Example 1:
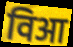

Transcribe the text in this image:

विआ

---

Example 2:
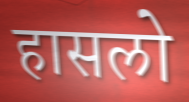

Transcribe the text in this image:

हासलो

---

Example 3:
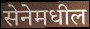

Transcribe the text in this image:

सेनेमधील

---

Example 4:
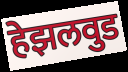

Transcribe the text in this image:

हेझलवुड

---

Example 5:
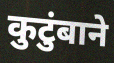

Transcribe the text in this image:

कुटुंबाने